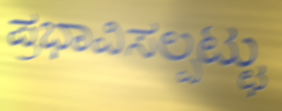
ಪ್ರಭಾವಿಸಲ್ಪಟ್ಟು